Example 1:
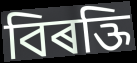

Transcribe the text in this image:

বিৰক্তি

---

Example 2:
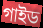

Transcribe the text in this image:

গাইড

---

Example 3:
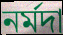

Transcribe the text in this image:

নৰ্মদা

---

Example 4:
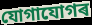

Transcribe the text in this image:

যোগাযোগৰ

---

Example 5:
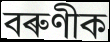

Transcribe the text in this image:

বৰুণীক